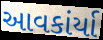
આવકાંર્યા